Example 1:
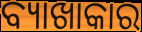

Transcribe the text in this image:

ବ୍ୟାଖାକାର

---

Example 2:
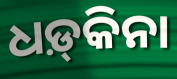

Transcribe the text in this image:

ଧଡ଼୍‍କିନା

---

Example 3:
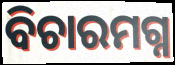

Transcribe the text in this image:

ବିଚାରମଗ୍ନ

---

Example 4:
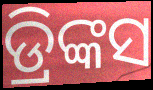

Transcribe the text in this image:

ଡ୍ରିଙ୍କସ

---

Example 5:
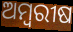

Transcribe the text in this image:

ଅମ୍ବରୀଷ